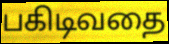
பகிடிவதை